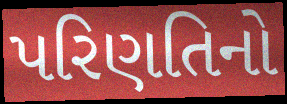
પરિણતિનો